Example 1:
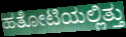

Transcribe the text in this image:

ಹತೋಟಿಯಲ್ಲಿತ್ತು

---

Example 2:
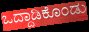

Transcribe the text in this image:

ಒದ್ದಾಡಿಕೊಂಡು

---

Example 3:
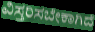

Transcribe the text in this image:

ವಿಸ್ತರಿಸಬೇಕಾಗಿದೆ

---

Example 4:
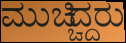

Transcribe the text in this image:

ಮುಚ್ಚಿದ್ದರು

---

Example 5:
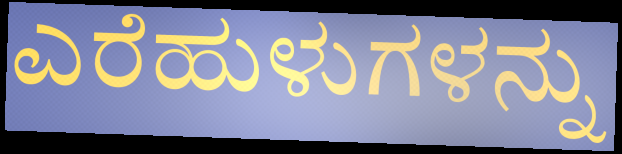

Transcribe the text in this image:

ಎರೆಹುಳುಗಳನ್ನು